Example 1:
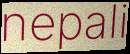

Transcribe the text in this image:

nepali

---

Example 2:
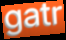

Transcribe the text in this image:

gatr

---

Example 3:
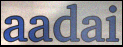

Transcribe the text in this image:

aadai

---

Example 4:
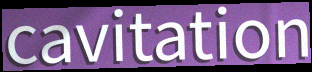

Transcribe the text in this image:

cavitation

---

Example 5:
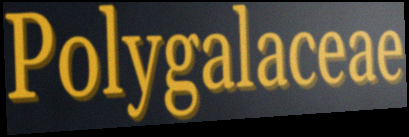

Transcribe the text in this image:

Polygalaceae